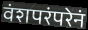
वंशपरंपरेनं